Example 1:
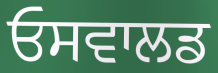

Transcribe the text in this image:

ਓਸਵਾਲਡ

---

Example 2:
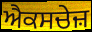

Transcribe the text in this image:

ਐਕਸਚੇਜ਼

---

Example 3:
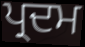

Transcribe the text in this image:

ਪ੍ਰਦਮ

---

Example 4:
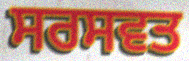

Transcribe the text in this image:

ਸਰਸਵਤ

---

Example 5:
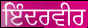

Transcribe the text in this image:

ਇੰਦਰਵੀਰ